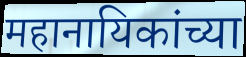
महानायिकांच्या